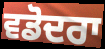
ਵਡੋਦਰਾ